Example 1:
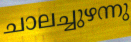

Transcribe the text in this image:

ചാലച്ചുഴന്നു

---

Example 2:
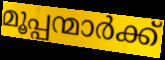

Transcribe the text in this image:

മൂപ്പന്മാർക്ക്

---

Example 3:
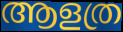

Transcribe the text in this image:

ആളത്ര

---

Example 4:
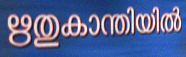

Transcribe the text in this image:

ഋതുകാന്തിയിൽ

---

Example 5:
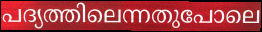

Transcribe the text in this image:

പദ്യത്തിലെന്നതുപോലെ